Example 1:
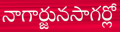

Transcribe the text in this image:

నాగార్జునసాగర్లో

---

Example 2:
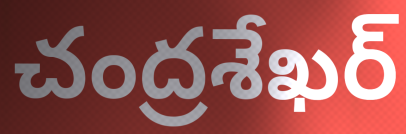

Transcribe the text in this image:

చంద్రశేఖర్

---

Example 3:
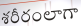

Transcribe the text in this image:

శరీరంలాగా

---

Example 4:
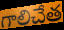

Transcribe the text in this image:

గాలిచేత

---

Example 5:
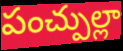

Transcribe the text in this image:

పంచ్పుల్లా